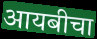
आयबीचा